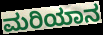
ಮರಿಯಾನ